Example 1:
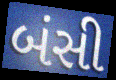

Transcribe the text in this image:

બંસી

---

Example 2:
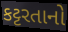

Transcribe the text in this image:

કટ્ટરતાનો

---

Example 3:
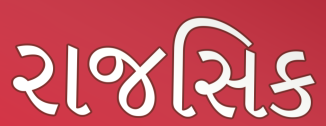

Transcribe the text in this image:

રાજસિક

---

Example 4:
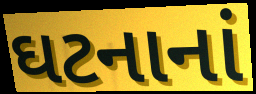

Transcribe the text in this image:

ઘટનાનાં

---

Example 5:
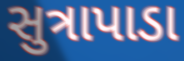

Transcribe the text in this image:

સુત્રાપાડા